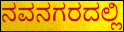
ನವನಗರದಲ್ಲಿ